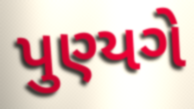
પુણ્યગે